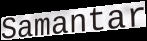
Samantar